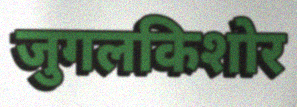
जुगलकिशोर